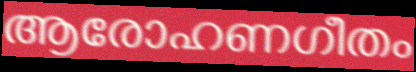
ആരോഹണഗീതം